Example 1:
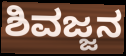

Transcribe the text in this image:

ಶಿವಜ್ಜನ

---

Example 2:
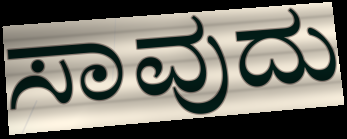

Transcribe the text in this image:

ಸಾವುದು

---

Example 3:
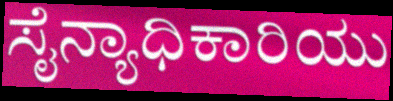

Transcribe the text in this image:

ಸೈನ್ಯಾಧಿಕಾರಿಯು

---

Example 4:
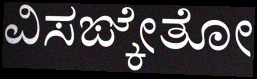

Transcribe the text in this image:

ವಿಸಙ್ಕೇತೋ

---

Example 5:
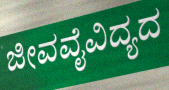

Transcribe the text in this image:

ಜೀವವೈವಿದ್ಯದ